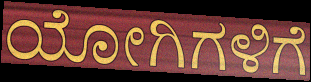
ಯೋಗಿಗಳಿಗೆ